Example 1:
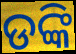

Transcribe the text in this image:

ଡଙ୍କି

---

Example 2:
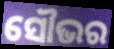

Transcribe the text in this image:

ସୌଭର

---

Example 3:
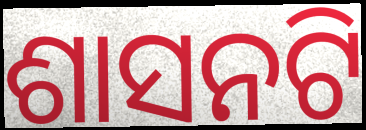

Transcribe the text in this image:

ଶାସନଟି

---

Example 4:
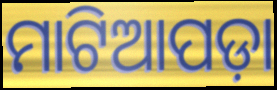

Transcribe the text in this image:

ମାଟିଆପଡ଼ା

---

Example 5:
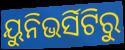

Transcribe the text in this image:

ୟୁନିଭର୍ସିଟିରୁ